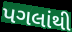
પગલાંથી